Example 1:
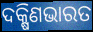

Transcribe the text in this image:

ଦକ୍ଷିଣଭାରତ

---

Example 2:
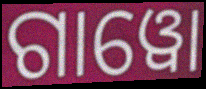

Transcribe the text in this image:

ଗାୱୋ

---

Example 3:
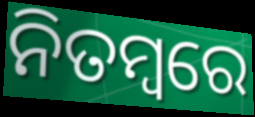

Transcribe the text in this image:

ନିତମ୍ୱରେ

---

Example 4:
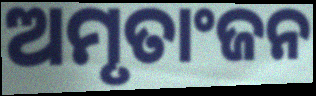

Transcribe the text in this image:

ଅମୃତାଂଜନ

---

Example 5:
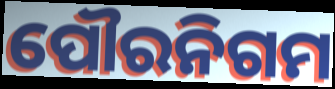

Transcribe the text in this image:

ପୌରନିଗମ